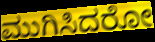
ಮುಗಿಸಿದರೋ